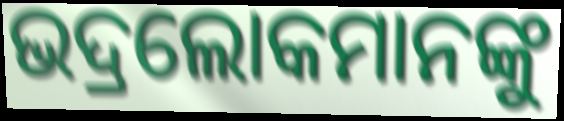
ଭଦ୍ରଲୋକମାନଙ୍କୁ